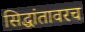
सिद्धांतावरच